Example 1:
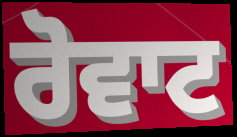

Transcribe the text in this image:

ਰੋਵਾਟ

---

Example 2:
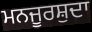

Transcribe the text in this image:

ਮਨਜੂਰਸ਼ੁਦਾ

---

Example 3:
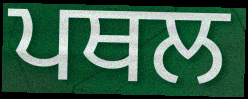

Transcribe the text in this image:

ਪਥਲ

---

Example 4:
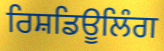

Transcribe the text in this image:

ਰਿਸ਼ਡਿਊਲਿੰਗ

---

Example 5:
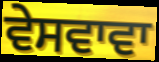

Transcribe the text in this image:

ਵੇਸਵਾਵਾ